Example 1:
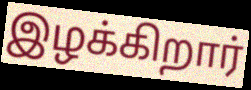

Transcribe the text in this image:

இழக்கிறார்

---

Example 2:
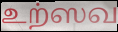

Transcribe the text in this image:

உற்ஸவ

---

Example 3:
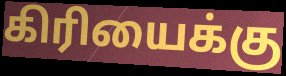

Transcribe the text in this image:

கிரியைக்கு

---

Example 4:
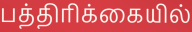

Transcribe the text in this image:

பத்திரிக்கையில்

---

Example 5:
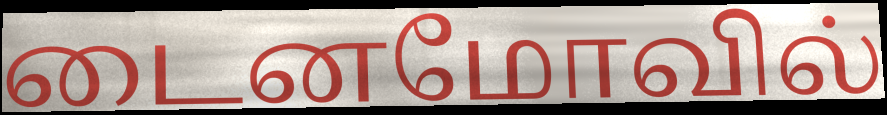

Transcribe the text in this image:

டைனமோவில்